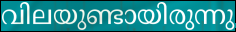
വിലയുണ്ടായിരുന്നു